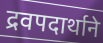
द्रवपदार्थाने